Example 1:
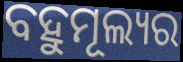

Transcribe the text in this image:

ବହୁମୂଲ୍ୟର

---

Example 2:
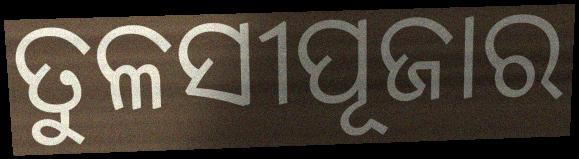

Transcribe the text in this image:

ତୁଳସୀପୂଜାର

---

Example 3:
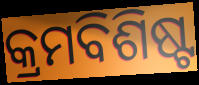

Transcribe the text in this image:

କ୍ରମବିଶିଷ୍ଟ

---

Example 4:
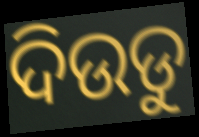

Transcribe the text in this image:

ଦିଉଡୁ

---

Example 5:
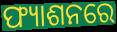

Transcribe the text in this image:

ଫ୍ୟାଶନରେ